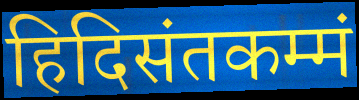
हिदिसंतकम्मं